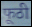
फूठी